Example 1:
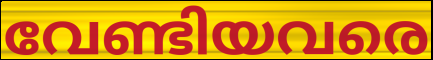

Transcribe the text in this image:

വേണ്ടിയവരെ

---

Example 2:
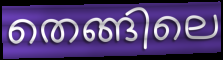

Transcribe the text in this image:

തെങ്ങിലെ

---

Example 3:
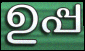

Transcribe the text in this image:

ഉപ്പ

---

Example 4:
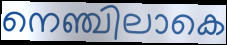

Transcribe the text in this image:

നെഞ്ചിലാകെ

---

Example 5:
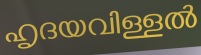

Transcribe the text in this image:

ഹൃദയവിള്ളൽ